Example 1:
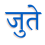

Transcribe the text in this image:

जुते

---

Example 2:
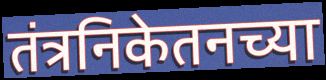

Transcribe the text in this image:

तंत्रनिकेतनच्या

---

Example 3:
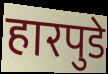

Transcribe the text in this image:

हारपुडे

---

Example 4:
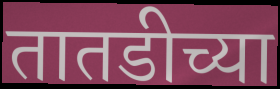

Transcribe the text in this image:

तातडीच्या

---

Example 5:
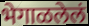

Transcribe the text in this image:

भेगाळलेलं